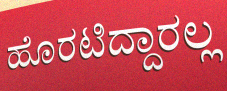
ಹೊರಟಿದ್ದಾರಲ್ಲ